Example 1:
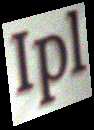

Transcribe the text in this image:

Ipl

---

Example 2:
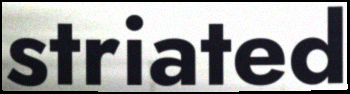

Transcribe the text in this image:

striated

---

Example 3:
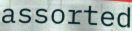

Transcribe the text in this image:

assorted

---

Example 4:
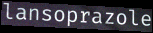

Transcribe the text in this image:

lansoprazole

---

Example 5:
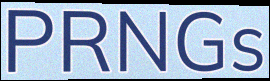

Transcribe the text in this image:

PRNGs